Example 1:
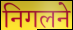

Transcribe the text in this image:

निगलने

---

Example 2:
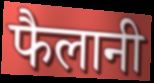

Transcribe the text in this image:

फैलानी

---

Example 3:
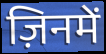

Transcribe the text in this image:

ज़िनमें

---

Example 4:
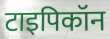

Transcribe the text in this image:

टाइपिकॉन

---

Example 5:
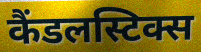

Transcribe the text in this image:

कैंडलस्टिक्स